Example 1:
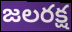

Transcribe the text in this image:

జలరక్ష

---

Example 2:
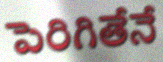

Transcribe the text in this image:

పెరిగితేనే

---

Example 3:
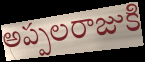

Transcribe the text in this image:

అప్పలరాజుకి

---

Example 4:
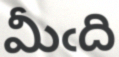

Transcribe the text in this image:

మీఁది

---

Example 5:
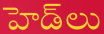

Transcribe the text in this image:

హెడ్‌లు